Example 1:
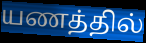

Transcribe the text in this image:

யணத்தில்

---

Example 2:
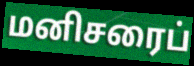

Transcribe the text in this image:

மனிசரைப்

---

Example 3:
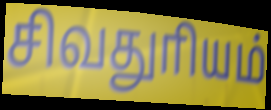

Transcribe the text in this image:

சிவதுரியம்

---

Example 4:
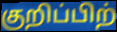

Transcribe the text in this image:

குறிப்பிற்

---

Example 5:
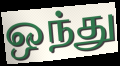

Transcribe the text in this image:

ஒந்து